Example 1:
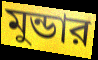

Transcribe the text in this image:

মুন্ডার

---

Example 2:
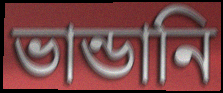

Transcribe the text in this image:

ভান্ডানি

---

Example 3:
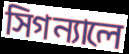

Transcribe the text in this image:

সিগন্যালে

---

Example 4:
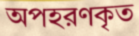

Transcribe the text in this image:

অপহরণকৃত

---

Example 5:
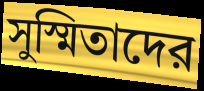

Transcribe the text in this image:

সুস্মিতাদের